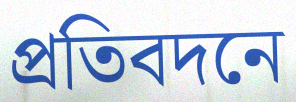
প্রতিবদনে